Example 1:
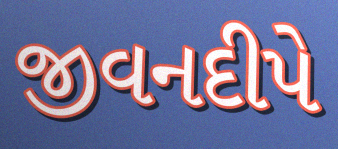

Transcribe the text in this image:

જીવનદીપે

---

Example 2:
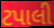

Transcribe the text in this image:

ટપાલી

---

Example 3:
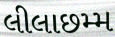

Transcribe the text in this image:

લીલાછમ્મ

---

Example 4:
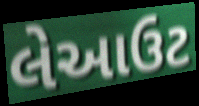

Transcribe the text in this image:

લેઆઉટ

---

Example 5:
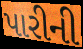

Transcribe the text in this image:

પારીની